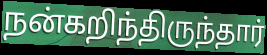
நன்கறிந்திருந்தார்